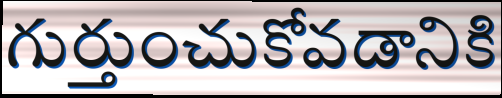
గుర్తుంచుకోవడానికి